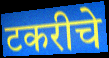
टकरीचे